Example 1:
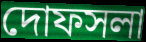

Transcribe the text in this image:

দোফসলা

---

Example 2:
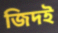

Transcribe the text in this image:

জিদই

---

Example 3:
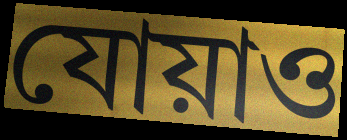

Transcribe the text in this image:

যোয়াও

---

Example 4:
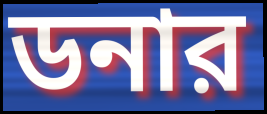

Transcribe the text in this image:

ডনার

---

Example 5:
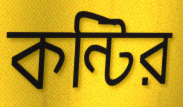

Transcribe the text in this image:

কন্টির